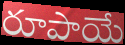
రూపాయే